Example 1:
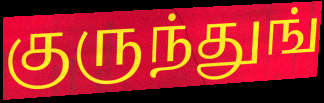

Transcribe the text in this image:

குருந்துங்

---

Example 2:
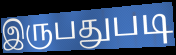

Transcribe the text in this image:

இருபதுபடி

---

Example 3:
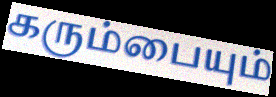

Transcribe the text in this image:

கரும்பையும்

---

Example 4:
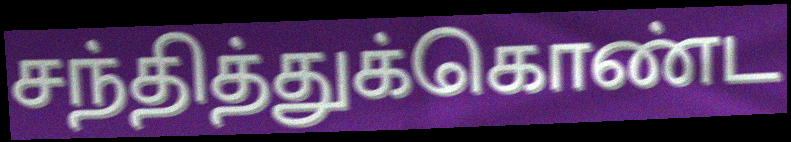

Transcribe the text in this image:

சந்தித்துக்கொண்ட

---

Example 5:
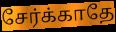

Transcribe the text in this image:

சேர்க்காதே